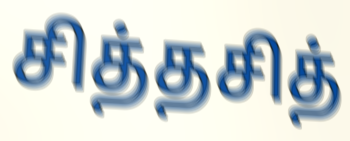
சித்தசித்